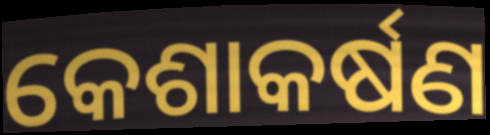
କେଶାକର୍ଷଣ